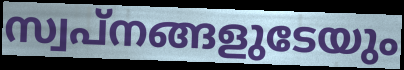
സ്വപ്നങ്ങളുടേയും